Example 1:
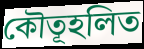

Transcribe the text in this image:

কৌতূহলিত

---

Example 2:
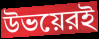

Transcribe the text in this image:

উভয়েরই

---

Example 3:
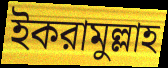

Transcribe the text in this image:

ইকরামুল্লাহ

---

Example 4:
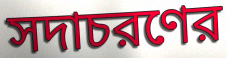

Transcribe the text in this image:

সদাচরণের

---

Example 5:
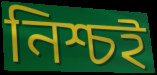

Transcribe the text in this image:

নিশ্চই